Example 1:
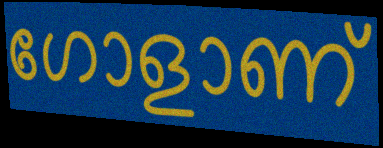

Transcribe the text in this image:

ഗോളാണ്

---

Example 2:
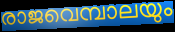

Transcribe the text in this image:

രാജവെമ്പാലയും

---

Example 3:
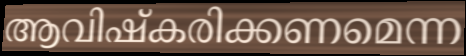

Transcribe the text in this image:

ആവിഷ്കരിക്കണമെന്ന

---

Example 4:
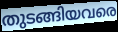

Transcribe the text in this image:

തുടങ്ങിയവരെ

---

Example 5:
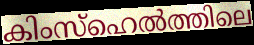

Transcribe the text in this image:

കിംസ്ഹെൽത്തിലെ